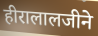
हीरालालजीने